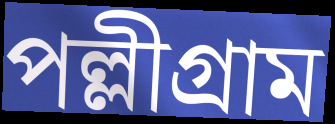
পল্লীগ্রাম